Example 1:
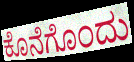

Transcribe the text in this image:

ಕೊನೆಗೊಂದು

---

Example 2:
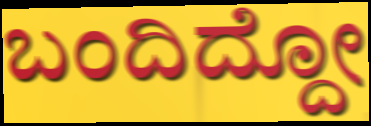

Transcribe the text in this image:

ಬಂದಿದ್ದೋ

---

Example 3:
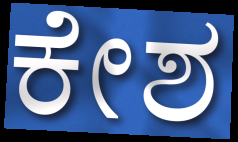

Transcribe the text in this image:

ಕೇಶ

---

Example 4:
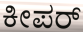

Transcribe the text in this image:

ಕೀಪರ್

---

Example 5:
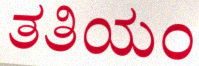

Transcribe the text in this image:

ತತಿಯಂ